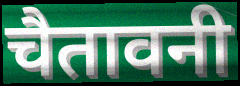
चैतावनी